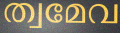
ത്വമേവ